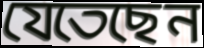
যেতেছেন